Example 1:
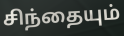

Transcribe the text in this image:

சிந்தையும்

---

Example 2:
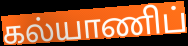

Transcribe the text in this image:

கல்யாணிப்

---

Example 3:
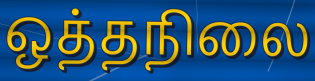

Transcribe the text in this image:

ஒத்தநிலை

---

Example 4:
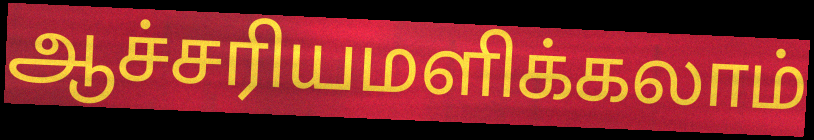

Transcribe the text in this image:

ஆச்சரியமளிக்கலாம்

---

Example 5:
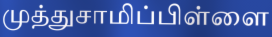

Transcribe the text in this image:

முத்துசாமிப்பிள்ளை